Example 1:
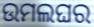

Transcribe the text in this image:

ଉମଲଘର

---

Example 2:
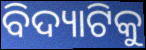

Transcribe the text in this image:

ବିଦ୍ୟାଟିକୁ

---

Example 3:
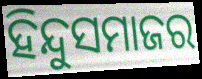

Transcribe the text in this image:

ହିନ୍ଦୁସମାଜର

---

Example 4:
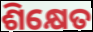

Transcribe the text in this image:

ଶିକ୍ଷେତ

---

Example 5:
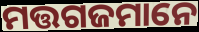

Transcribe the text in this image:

ମତ୍ତଗଜମାନେ